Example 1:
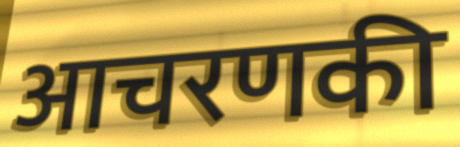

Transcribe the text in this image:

आचरणकी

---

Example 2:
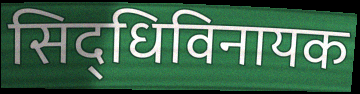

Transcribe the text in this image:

सिद्धिविनायक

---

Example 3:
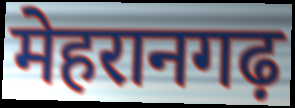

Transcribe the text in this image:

मेहरानगढ़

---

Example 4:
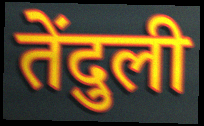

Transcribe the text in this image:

तेंदुली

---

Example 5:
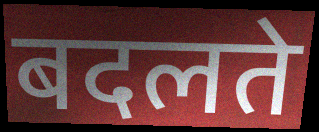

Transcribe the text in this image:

बदलते